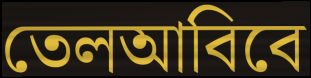
তেলআবিবে